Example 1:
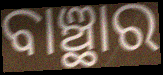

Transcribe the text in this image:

ବାଞ୍ଛାର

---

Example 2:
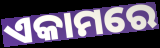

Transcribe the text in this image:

ଏକାମରେ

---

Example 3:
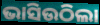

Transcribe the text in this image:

ଭାସିଉଠିଲା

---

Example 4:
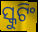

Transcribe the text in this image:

ସ୍କୁଟିଂ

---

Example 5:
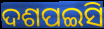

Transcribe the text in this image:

ଦଶପଇସି